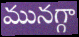
మునగ్గా